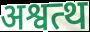
अश्वत्थ